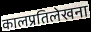
कालप्रतिलेखना